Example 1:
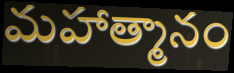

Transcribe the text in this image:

మహాత్మానం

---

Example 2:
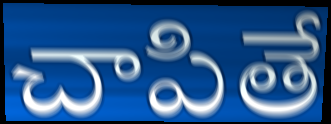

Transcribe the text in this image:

చాపితే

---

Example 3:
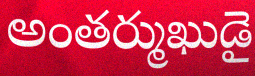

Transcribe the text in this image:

అంతర్ముఖుడై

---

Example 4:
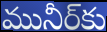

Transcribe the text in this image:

మునీర్‌కు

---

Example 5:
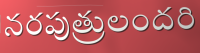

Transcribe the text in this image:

నరపుత్రులందరి